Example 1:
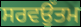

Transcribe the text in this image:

ਸਰਵਉੱਤਮ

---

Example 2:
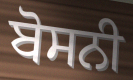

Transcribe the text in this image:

ਬੋਸਨੀ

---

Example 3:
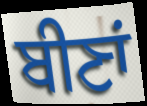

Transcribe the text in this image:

ਬੀਣਾਂ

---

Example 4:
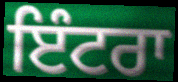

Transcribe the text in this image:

ਇੰਟਰਾ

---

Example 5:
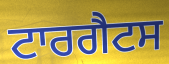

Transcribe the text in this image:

ਟਾਰਗੈਟਸ